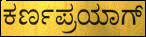
ಕರ್ಣಪ್ರಯಾಗ್